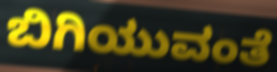
ಬಿಗಿಯುವಂತೆ